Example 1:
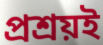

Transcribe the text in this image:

প্রশ্রয়ই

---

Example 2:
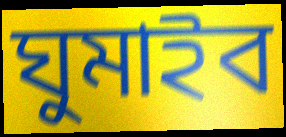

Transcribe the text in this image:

ঘুমাইব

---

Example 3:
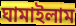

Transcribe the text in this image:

ঘামাইলাম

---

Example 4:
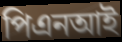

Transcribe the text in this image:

পিএনআই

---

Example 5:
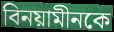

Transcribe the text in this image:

বিনয়ামীনকে